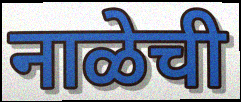
नाळेची